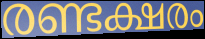
രണ്ടക്ഷരം